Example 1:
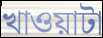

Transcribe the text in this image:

খাওয়াটা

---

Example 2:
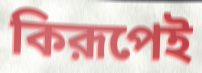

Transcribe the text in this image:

কিরূপেই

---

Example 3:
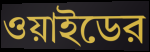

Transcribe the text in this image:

ওয়াইডের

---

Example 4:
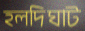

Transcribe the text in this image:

হলদিঘাট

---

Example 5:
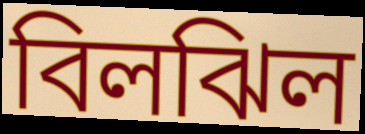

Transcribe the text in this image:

বিলঝিল